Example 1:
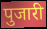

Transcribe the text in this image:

पुजारी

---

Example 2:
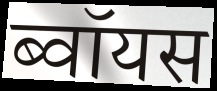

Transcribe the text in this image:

ब्वॉयस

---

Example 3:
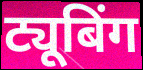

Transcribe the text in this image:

ट्यूबिंग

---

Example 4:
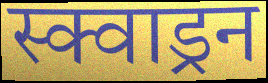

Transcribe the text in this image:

स्क्वाड्रन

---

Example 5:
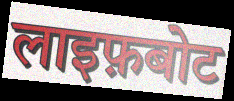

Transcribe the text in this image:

लाइफ़बोट